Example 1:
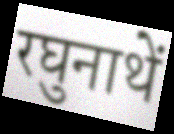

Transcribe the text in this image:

रघुनाथें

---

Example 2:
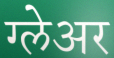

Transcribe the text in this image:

ग्लेअर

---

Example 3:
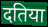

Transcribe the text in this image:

दतिया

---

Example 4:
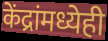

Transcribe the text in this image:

केंद्रांमध्येही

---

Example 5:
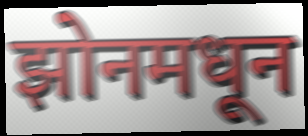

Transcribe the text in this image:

झोनमधून